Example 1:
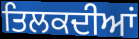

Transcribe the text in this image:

ਤਿਲਕਦੀਆਂ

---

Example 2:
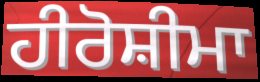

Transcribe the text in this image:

ਹੀਰੋਸ਼ੀਮਾ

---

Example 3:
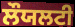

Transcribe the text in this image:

ਲੌਯਲਟੀ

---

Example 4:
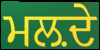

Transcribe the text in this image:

ਮਲ਼ਦੇ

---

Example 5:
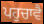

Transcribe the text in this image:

ਪਹੁਚਾਵੈ